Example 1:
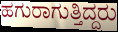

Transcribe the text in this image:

ಹಗುರಾಗುತ್ತಿದ್ದರು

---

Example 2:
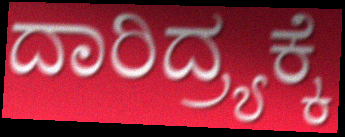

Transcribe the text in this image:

ದಾರಿದ್ರ್ಯಕ್ಕೆ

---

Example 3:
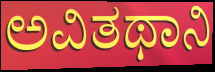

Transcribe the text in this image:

ಅವಿತಥಾನಿ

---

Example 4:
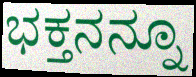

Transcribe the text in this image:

ಭಕ್ತನನ್ನೂ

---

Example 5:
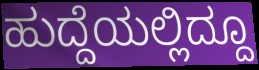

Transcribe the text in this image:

ಹುದ್ದೆಯಲ್ಲಿದ್ದೂ